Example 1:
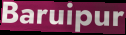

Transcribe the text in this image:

Baruipur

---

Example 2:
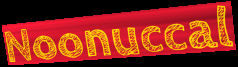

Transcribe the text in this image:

Noonuccal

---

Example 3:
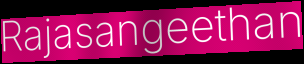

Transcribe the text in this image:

Rajasangeethan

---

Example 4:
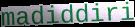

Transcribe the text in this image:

madiddiri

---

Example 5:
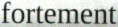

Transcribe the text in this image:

fortement